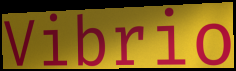
Vibrio